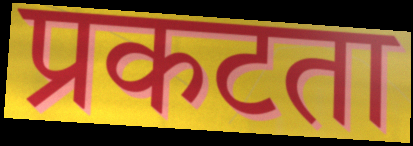
प्रकटता